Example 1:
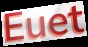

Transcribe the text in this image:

Euet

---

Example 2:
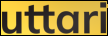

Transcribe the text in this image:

uttari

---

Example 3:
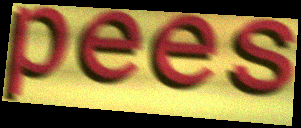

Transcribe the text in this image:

pees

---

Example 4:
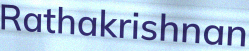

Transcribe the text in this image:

Rathakrishnan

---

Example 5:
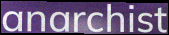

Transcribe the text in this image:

anarchist